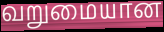
வறுமையான